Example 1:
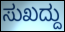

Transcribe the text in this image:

ಸುಖದ್ದು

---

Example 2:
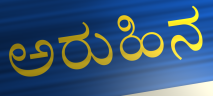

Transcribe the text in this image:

ಅರುಹಿನ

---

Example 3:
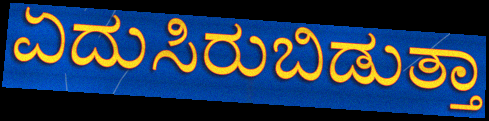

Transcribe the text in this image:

ಏದುಸಿರುಬಿಡುತ್ತಾ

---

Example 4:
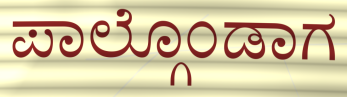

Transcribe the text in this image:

ಪಾಲ್ಗೊಂಡಾಗ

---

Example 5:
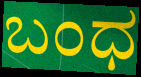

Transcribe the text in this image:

ಬಂಧ